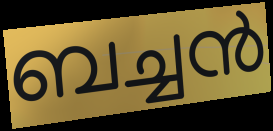
ബച്ചൻ